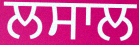
ਲਸਾਲ